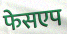
फेसएप